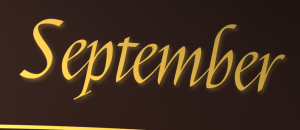
September